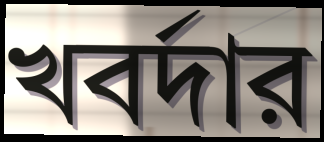
খবর্দার